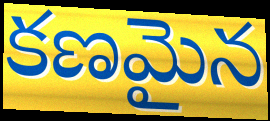
కణమైన